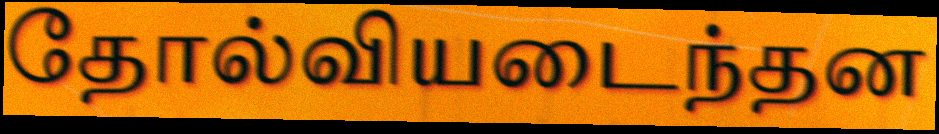
தோல்வியடைந்தன